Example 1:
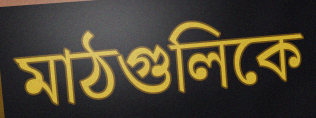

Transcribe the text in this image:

মাঠগুলিকে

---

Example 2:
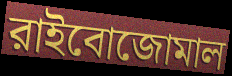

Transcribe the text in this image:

রাইবোজোমাল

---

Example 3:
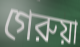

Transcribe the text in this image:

গেরুয়া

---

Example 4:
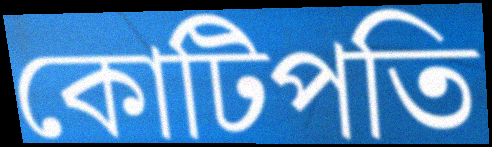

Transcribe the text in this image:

কোটিপতি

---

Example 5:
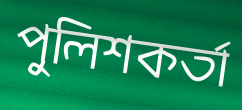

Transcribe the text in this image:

পুলিশকর্তা